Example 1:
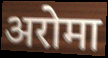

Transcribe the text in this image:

अरोमा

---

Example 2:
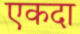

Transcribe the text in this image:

एकदा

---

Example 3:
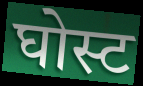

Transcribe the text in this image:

घोस्‍ट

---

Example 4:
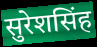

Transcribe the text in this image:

सुरेशसिंह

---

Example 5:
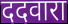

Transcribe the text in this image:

ददवारा